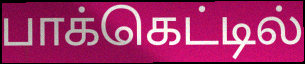
பாக்கெட்டில்